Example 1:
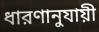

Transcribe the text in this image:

ধারণানুযায়ী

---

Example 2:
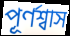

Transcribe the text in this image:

পূর্ণশ্বাস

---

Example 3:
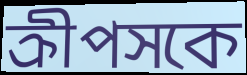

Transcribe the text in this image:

ক্রীপসকে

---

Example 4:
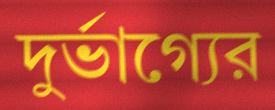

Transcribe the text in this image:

দুর্ভাগ্যের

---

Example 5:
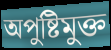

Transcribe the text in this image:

অপুষ্টিমুক্ত